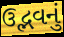
ઉદ્ભવનું